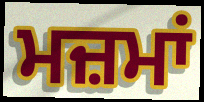
ਮਜ਼ਮਾਂ